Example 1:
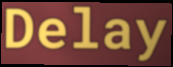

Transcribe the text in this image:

Delay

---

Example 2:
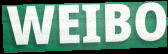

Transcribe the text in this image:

WEIBO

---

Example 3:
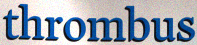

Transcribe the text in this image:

thrombus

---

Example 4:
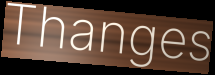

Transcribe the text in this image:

Thanges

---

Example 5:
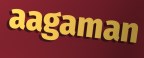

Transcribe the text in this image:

aagaman